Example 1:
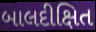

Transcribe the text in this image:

બાલદીક્ષિત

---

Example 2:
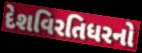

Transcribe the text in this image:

દેશવિરતિધરનો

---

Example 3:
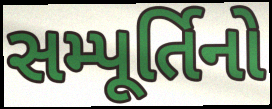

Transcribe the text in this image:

સમ્પૂર્તિનો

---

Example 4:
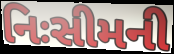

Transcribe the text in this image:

નિઃસીમની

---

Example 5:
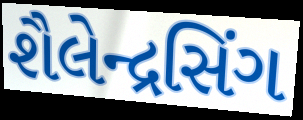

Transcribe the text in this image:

શૈલેન્દ્રસિંગ